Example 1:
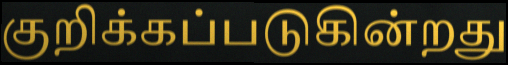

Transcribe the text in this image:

குறிக்கப்படுகின்றது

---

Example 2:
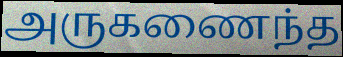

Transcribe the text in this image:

அருகணைந்த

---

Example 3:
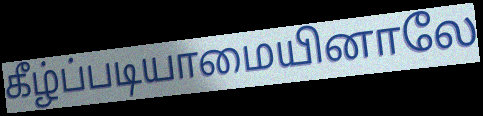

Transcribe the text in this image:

கீழ்ப்படியாமையினாலே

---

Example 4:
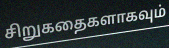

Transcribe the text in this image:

சிறுகதைகளாகவும்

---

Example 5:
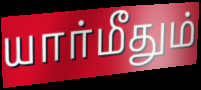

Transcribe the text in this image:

யார்மீதும்